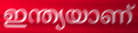
ഇന്ത്യയാണ്